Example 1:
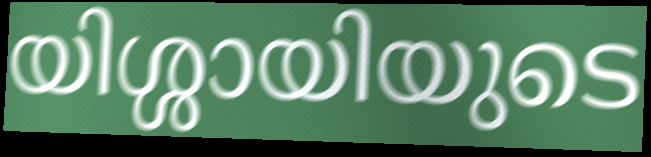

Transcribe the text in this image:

യിശ്ശായിയുടെ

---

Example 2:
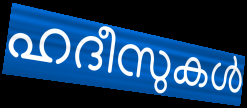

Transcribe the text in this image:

ഹദീസുകൾ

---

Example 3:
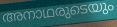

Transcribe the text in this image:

അനാഥരുടെയും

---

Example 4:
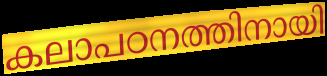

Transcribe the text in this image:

കലാപഠനത്തിനായി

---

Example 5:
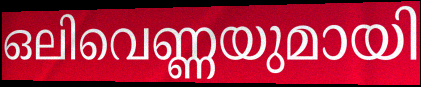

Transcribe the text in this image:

ഒലിവെണ്ണയുമായി